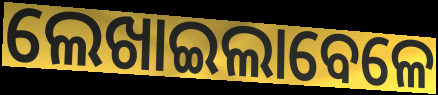
ଲେଖାଇଲାବେଳେ